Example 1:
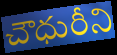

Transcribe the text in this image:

చౌధురీని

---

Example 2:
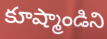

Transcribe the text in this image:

కూష్మాండిని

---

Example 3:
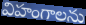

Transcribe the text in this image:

విహంగాలను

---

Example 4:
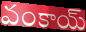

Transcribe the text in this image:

వంకాయ్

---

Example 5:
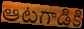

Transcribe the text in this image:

ఆటగాడికి